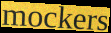
mockers